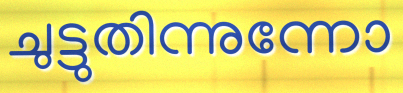
ചുട്ടുതിന്നുന്നോ